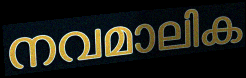
നവമാലിക